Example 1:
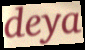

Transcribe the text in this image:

deya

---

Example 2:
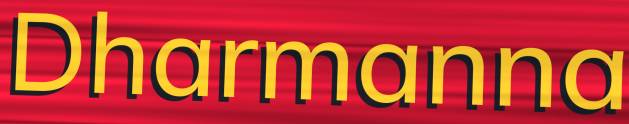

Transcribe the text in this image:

Dharmanna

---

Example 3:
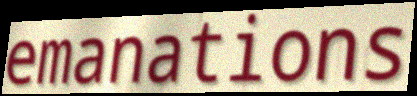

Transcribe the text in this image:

emanations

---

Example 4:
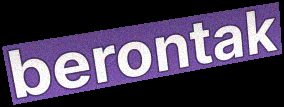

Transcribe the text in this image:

berontak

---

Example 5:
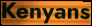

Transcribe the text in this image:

Kenyans